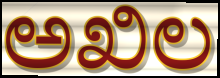
ಅಖಿಲ